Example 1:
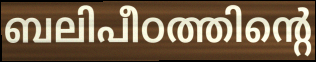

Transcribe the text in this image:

ബലിപീഠത്തിന്റെ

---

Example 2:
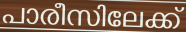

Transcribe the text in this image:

പാരീസിലേക്ക്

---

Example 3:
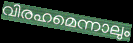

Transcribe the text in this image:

വിരഹമെന്നാലും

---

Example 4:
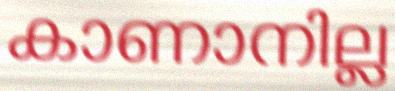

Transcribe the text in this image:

കാണാനില്ല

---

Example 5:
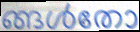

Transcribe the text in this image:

ങ്ങൾതോ